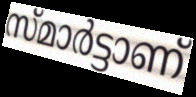
സ്മാർട്ടാണ്